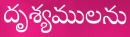
దృశ్యములను